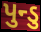
પુન્ડુ